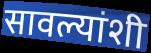
सावल्यांशी